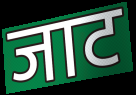
जाट